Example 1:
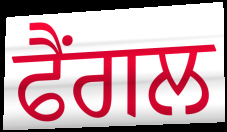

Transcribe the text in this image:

ਫੈਂਗਲ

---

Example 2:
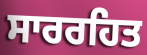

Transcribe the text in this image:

ਸਾਰਰਹਿਤ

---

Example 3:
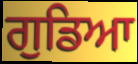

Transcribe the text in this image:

ਗੁਡਿਆ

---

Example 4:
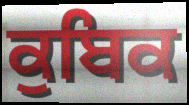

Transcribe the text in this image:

ਕੁਬਿਕ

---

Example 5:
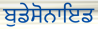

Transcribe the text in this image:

ਬੁਡੇਸੋਨਾਇਡ